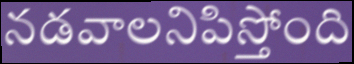
నడవాలనిపిస్తోంది